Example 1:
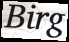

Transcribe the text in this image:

Birg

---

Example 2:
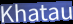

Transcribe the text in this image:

Khatau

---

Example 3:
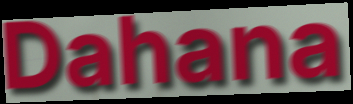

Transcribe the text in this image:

Dahana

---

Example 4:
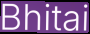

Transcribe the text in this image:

Bhitai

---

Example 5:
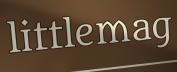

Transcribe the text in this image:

littlemag